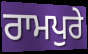
ਰਾਮਪੁਰੇ